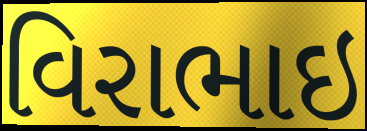
વિરાભાઇ